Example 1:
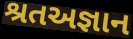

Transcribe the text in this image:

શ્રતઅજ્ઞાન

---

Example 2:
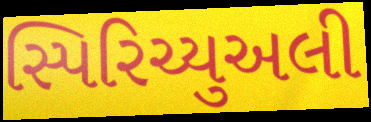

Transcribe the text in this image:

સ્પિરિચ્યુઅલી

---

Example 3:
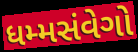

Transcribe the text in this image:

ધમ્મસંવેગો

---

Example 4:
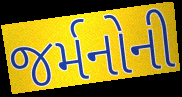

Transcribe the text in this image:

જર્મનોની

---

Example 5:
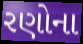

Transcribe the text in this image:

રણોના